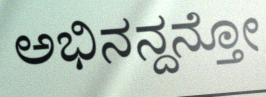
ಅಭಿನನ್ದನ್ತೋ